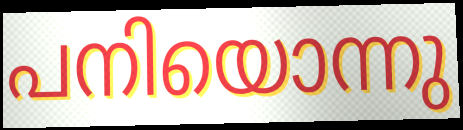
പനിയൊന്നു